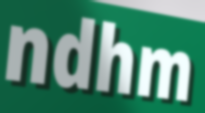
ndhm